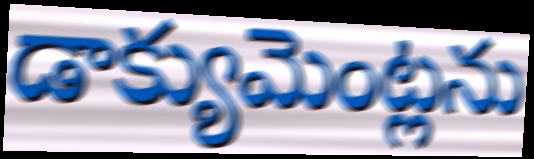
డాక్యుమెంట్లను